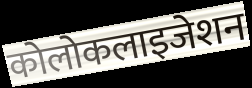
कोलोकलाइजेशन